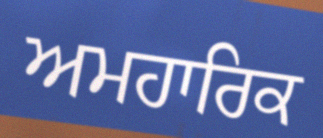
ਅਮਹਾਰਿਕ